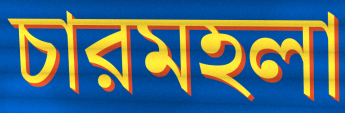
চারমহলা